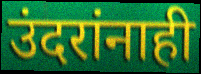
उंदरांनाही